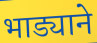
भाड्याने